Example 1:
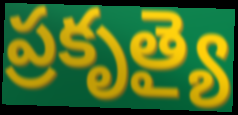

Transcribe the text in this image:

ప్రకృత్యై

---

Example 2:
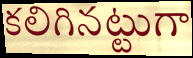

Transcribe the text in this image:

కలిగినట్టుగా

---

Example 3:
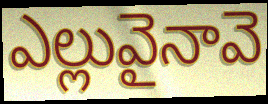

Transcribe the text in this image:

ఎల్లువైనావె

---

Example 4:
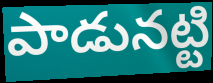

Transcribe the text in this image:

పాడునట్టి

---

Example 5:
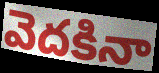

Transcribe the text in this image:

వెదకినా